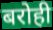
बरोही